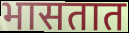
भासतात